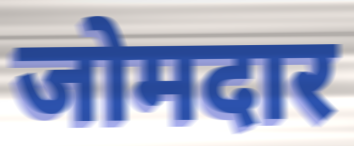
जोमदार